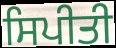
ਸਿਪੀਤੀ